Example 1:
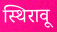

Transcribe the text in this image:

स्थिरावू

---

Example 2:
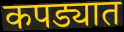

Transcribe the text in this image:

कपड्यात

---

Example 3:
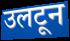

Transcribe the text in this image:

उलटून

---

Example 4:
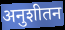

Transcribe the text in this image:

अनुशीतन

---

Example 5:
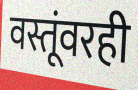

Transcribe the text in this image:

वस्तूंवरही